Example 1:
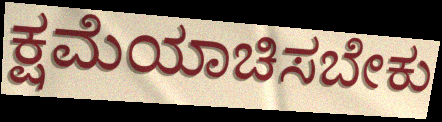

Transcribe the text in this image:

ಕ್ಷಮೆಯಾಚಿಸಬೇಕು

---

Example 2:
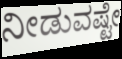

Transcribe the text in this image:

ನೀಡುವಷ್ಟೇ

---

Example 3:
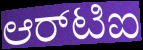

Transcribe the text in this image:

ಆರ್‌ಟಿಐ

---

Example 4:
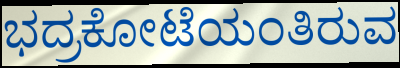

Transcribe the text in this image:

ಭದ್ರಕೋಟೆಯಂತಿರುವ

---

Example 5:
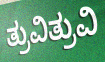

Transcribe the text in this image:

ತ್ರುವಿತ್ರುವಿ